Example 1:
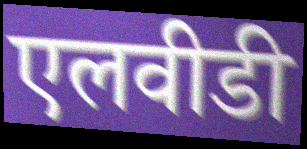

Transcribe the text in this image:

एलवीडी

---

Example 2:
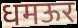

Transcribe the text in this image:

धमऊर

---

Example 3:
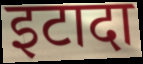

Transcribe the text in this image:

इटादा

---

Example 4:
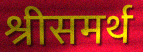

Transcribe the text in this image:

श्रीसमर्थ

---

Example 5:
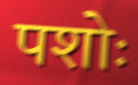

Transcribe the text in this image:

पशोः